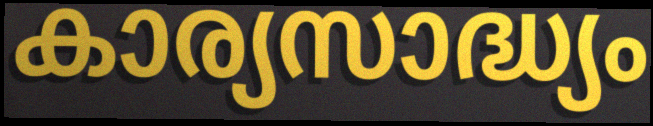
കാര്യസാദ്ധ്യം